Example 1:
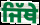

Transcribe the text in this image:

ਜਿੱਥੇ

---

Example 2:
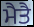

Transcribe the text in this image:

ਮੈਤੈ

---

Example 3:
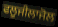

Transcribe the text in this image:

ਫਲੂਜੀਲਾਜੋਲ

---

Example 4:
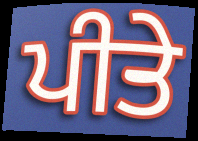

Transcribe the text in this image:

ਪੀਤੇ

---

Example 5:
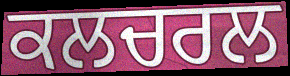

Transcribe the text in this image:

ਕਲਚਰਲ